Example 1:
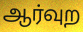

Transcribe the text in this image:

ஆர்வுற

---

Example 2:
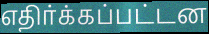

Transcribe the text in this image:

எதிர்க்கப்பட்டன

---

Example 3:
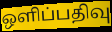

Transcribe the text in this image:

ஒளிப்பதிவு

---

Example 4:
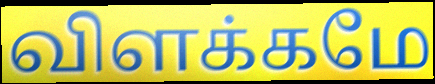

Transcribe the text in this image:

விளக்கமே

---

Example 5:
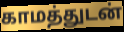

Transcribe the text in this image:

காமத்துடன்